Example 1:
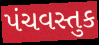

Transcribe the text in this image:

પંચવસ્તુક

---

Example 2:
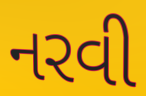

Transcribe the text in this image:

નરવી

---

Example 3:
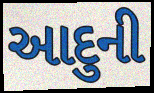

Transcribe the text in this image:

આદુની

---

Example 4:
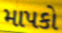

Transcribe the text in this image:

માપકો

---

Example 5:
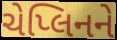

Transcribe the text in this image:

ચેપ્લિનને